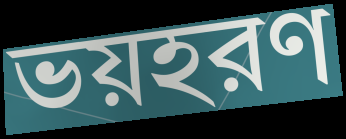
ভয়হরণ